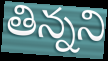
తిన్నని